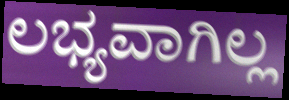
ಲಭ್ಯವಾಗಿಲ್ಲ